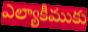
ఎల్యాకీముకు